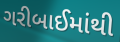
ગરીબાઈમાંથી